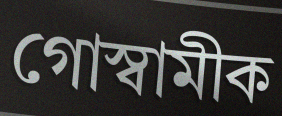
গোস্বামীক